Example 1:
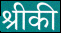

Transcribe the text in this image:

श्रीकी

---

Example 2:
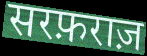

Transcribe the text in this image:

सरफ़राज़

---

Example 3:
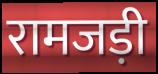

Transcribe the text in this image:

रामजड़ी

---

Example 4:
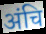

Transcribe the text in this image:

अंचि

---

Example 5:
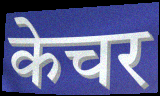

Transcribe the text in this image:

केचर